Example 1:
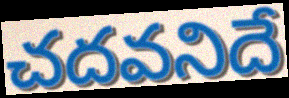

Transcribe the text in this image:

చదవనిదే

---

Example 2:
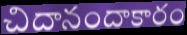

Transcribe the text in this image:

చిదానందాకారం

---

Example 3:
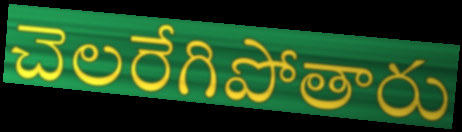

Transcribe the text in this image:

చెలరేగిపోతారు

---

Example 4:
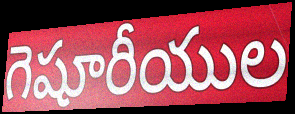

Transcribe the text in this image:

గెషూరీయుల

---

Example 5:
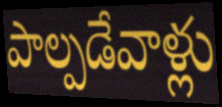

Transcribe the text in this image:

పాల్పడేవాళ్లు